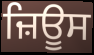
ਜ਼ਿਊਸ